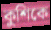
কুশিকে